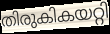
തിരുകികയറ്റി